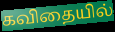
கவிதையில்